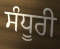
ਸੰਧੂਰੀ